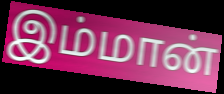
இம்மான்